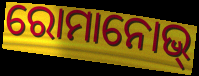
ରୋମାନୋଭ୍